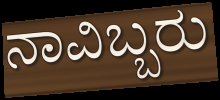
ನಾವಿಬ್ಬರು